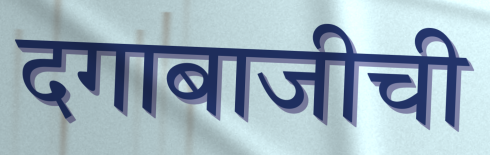
दगाबाजीची